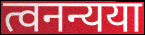
त्वनन्यया